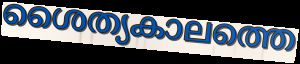
ശൈത്യകാലത്തെ